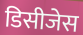
डिसीजेस